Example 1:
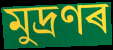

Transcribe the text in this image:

মুদ্ৰণৰ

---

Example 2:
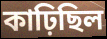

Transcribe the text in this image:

কাঢ়িছিল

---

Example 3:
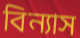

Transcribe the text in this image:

বিন্যাস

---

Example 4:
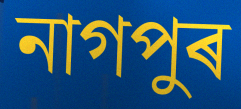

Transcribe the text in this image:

নাগপুৰ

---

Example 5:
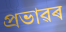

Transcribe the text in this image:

প্ৰভাৱৰ